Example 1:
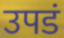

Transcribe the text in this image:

उपडं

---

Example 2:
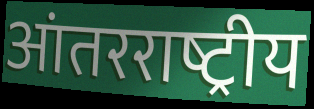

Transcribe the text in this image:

आंतरराष्ट्रीय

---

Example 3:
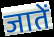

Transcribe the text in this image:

जातें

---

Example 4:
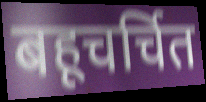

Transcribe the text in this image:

बहूचर्चित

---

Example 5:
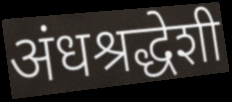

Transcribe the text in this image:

अंधश्रद्धेशी